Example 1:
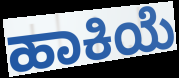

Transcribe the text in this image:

ಹಾಕಿಯೆ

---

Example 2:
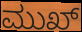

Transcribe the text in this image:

ಮುಖ್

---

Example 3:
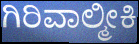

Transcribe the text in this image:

ಗಿರಿವಾಲ್ಮೀಕಿ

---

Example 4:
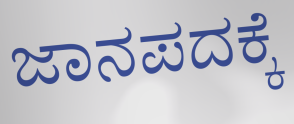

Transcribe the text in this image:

ಜಾನಪದಕ್ಕೆ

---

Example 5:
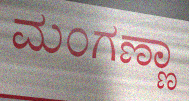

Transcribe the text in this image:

ಮಂಗಣ್ಣಾ